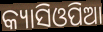
କ୍ୟାସିଓପିଆ